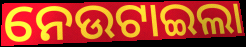
ନେଉଟାଇଲା